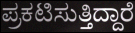
ಪ್ರಕಟಿಸುತ್ತಿದ್ದಾರೆ